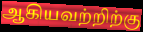
ஆகியவற்றிற்கு